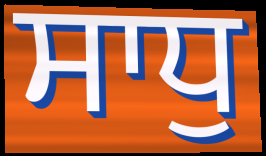
ਸਾਧੁ